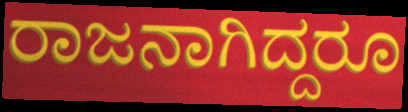
ರಾಜನಾಗಿದ್ದರೂ